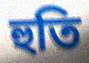
হুতি